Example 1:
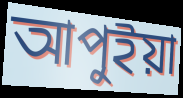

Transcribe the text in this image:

আপুইয়া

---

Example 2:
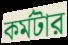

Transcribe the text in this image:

কর্মটার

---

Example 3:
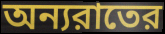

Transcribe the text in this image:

অন্যরাতের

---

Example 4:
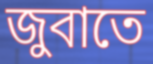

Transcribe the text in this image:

জুবাতে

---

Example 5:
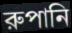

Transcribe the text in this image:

রুপানি